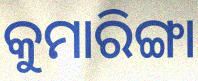
କୁମାରିଙ୍ଗା